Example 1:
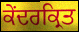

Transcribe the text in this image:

ਕੇਂਦਰਕ੍ਰਿਤ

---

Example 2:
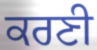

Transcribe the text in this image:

ਕਰਣੀ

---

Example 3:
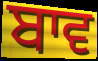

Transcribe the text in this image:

ਬਾਵ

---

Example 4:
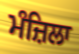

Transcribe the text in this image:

ਮੰਜ਼ਿਲਾ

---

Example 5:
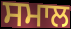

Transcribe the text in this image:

ਸਮਾਲ